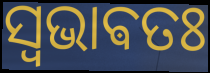
ସ୍ଵଭାଵତଃ